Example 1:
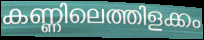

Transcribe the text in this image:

കണ്ണിലെത്തിളക്കം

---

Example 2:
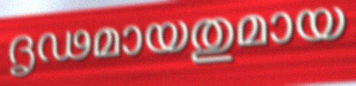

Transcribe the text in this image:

ദൃഢമായതുമായ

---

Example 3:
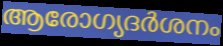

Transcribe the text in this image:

ആരോഗ്യദർശനം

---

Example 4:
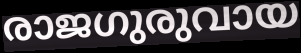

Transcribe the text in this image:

രാജഗുരുവായ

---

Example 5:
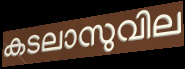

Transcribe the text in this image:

കടലാസുവില